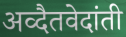
अव्दैतवेदांती